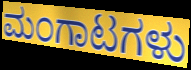
ಮಂಗಾಟಗಳು